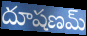
దూషణమ్